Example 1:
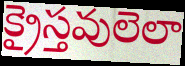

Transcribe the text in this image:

క్రైస్తవులెలా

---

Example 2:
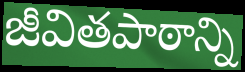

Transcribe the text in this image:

జీవితపాఠాన్ని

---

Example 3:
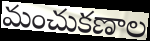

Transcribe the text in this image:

మంచుకణాల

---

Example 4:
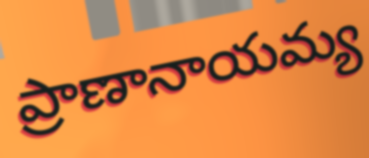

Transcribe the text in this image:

ప్రాణానాయమ్య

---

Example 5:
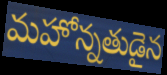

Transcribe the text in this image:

మహోన్నతుడైన